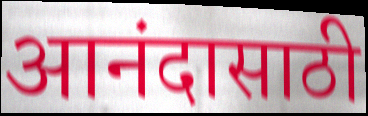
आनंदासाठी